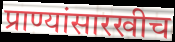
प्राण्यांसारखीच